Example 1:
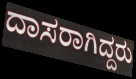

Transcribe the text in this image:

ದಾಸರಾಗಿದ್ದರು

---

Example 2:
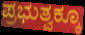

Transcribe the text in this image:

ಪ್ರಭುತ್ವಕ್ಕೂ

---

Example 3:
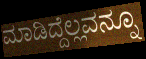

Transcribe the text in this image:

ಮಾಡಿದ್ದೆಲ್ಲವನ್ನೂ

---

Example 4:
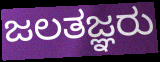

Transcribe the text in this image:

ಜಲತಜ್ಞರು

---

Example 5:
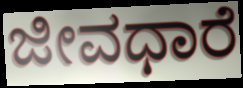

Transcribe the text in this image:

ಜೀವಧಾರೆ